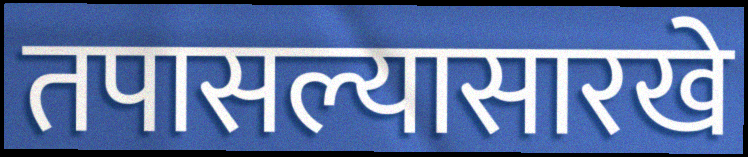
तपासल्यासारखे